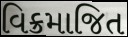
વિક્રમાજિત